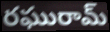
రఘురామ్